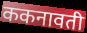
ककनावती